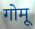
गोमू